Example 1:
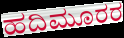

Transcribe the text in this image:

ಹದಿಮೂರರ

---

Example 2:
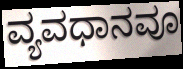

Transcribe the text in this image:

ವ್ಯವಧಾನವೂ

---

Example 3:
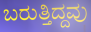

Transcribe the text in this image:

ಬರುತ್ತಿದ್ದವು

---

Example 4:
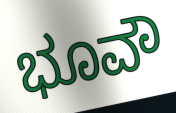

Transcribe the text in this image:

ಭೂವೌ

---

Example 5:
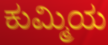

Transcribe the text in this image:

ಕುಮ್ಮಿಯ